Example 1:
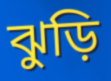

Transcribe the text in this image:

ঝুড়ি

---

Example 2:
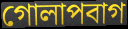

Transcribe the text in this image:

গোলাপবাগ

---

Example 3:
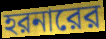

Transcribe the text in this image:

হরনারের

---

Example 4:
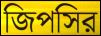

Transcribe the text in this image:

জিপসির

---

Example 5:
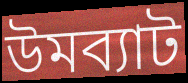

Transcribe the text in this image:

উমব্যাট